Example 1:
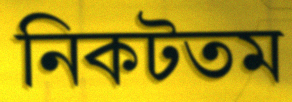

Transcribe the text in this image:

নিকটতম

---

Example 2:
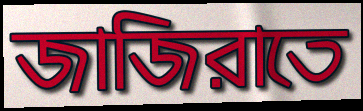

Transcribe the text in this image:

জাজিরাতে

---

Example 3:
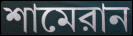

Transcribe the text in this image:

শামেরান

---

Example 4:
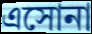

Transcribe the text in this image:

এসোনা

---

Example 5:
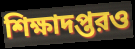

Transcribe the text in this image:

শিক্ষাদপ্তরও